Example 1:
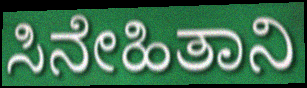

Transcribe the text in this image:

ಸಿನೇಹಿತಾನಿ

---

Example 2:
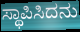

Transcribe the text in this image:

ಸ್ಥಾಪಿಸಿದನು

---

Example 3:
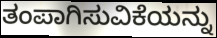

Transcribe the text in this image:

ತಂಪಾಗಿಸುವಿಕೆಯನ್ನು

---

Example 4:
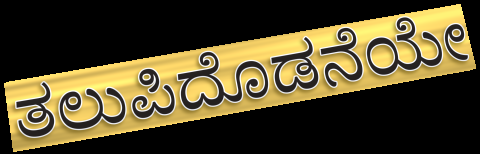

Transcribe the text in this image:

ತಲುಪಿದೊಡನೆಯೇ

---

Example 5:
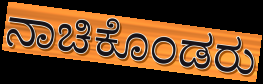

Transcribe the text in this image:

ನಾಚಿಕೊಂಡರು